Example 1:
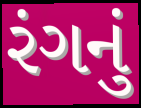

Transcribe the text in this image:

રંગનું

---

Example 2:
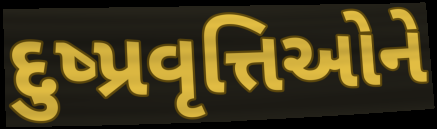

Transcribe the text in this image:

દુષ્પ્રવૃત્તિઓને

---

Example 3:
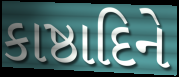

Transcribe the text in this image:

કાષ્ઠાદિને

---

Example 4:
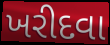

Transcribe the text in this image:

ખરીદવા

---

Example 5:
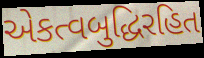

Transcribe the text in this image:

એકત્વબુદ્ધિરહિત